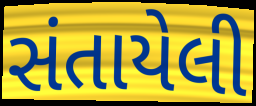
સંતાયેલી